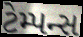
ટેમ્પન્સ